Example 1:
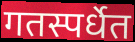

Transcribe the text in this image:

गतस्पर्धेत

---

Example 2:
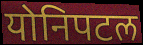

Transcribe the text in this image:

योनिपटल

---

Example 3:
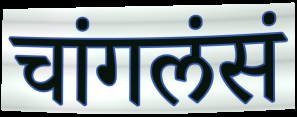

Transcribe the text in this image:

चांगलंसं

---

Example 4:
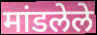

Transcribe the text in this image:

मांडलेले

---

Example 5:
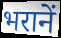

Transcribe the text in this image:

भरानें